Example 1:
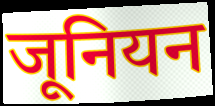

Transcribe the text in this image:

जूनियन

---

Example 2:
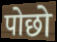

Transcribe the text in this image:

पोछो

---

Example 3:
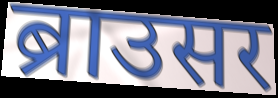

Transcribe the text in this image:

ब्राउसर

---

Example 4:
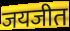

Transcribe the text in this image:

जयजीत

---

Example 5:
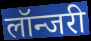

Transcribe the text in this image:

लॉन्जरी